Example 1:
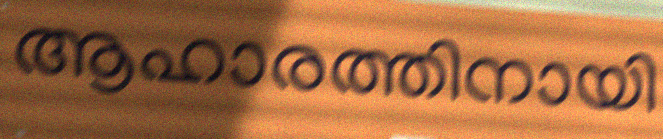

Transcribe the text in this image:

ആഹാരത്തിനായി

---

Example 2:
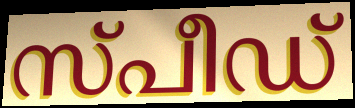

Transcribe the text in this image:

സ്പീഡ്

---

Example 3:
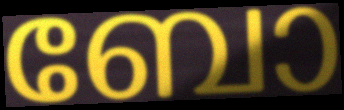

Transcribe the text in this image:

ബോ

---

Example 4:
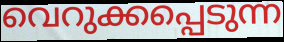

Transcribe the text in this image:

വെറുക്കപ്പെടുന്ന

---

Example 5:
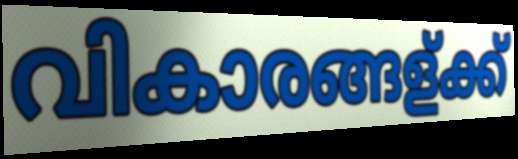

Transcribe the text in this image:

വികാരങ്ങള്ക്ക്